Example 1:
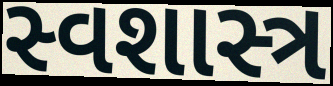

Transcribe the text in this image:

સ્વશાસ્ત્ર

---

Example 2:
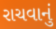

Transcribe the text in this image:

રાચવાનું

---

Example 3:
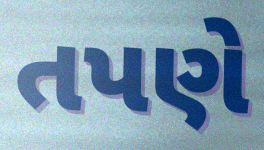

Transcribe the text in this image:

તપણે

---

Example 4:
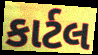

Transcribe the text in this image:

કાર્ટલ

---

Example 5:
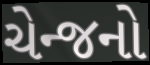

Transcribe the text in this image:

ચેન્જનો